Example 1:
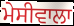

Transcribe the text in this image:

ਮੇਸੀਵਾਲਾ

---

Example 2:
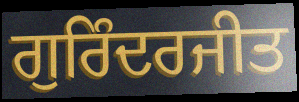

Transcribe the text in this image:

ਗੁਰਿੰਦਰਜੀਤ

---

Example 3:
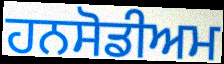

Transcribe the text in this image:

ਹਨਸੋਡੀਅਮ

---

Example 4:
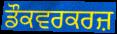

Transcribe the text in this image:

ਡੌਕਵਰਕਰਜ਼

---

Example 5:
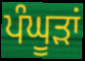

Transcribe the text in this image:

ਪੰਘੂੜਾਂ